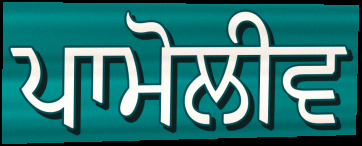
ਪਾਮੋਲੀਵ